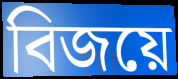
বিজয়ে